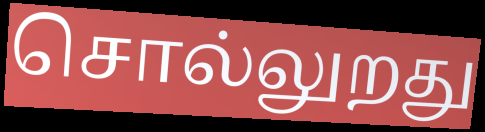
சொல்லுறது